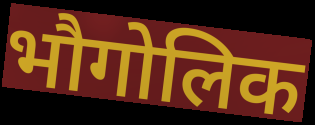
भौगोलिक